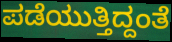
ಪಡೆಯುತ್ತಿದ್ದಂತೆ